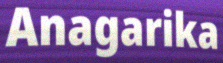
Anagarika